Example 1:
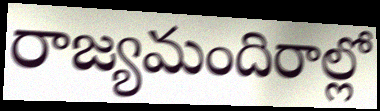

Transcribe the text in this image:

రాజ్యమందిరాల్లో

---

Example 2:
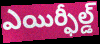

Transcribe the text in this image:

ఎయిర్ఫీల్డ్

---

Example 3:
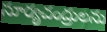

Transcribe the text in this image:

సూర్యచంద్రులను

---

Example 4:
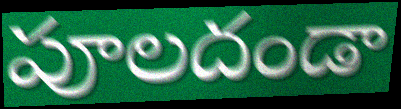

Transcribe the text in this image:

పూలదండా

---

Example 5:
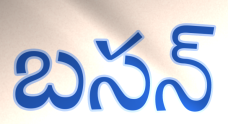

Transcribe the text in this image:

బసన్